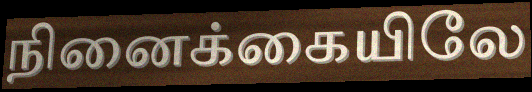
நினைக்கையிலே